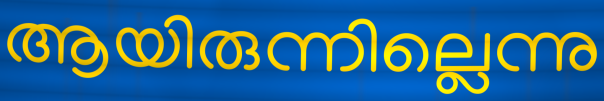
ആയിരുന്നില്ലെന്നു